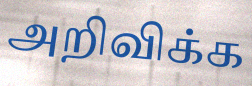
அறிவிக்க